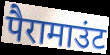
पैरामाउंट